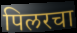
पिलरचा